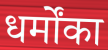
धर्मोंका